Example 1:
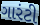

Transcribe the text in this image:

ગારંટી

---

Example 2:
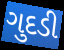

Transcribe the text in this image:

ગુદડી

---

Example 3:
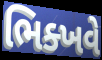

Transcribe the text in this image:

ભિક્ખવે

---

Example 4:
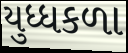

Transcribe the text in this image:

યુધ્ધકળા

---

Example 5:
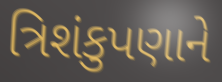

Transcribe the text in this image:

ત્રિશંકુપણાને